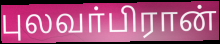
புலவர்பிரான்